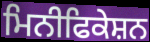
ਮਿਨੀਫਿਕੇਸ਼ਨ